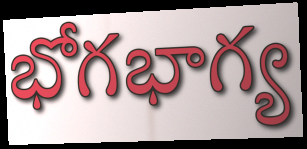
భోగభాగ్య